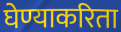
घेण्याकरिता